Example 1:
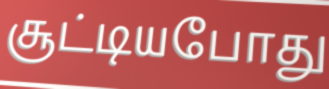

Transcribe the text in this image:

சூட்டியபோது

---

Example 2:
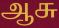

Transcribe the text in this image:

ஆசு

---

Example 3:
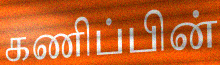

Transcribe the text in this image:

கணிப்பின்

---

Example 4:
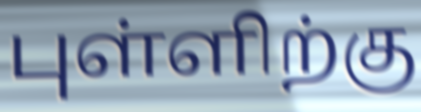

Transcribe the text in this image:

புள்ளிற்கு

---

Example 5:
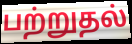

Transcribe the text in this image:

பற்றுதல்